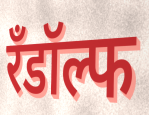
रँडॉल्फ